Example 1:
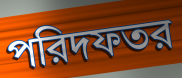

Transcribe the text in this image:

পরিদফতর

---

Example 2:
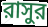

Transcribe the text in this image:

রাসুর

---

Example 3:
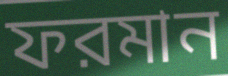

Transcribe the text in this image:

ফরমান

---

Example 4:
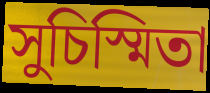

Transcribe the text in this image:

সুচিস্মিতা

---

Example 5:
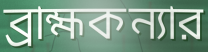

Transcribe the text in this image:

ব্রাহ্মকন্যার